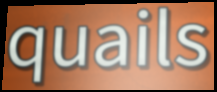
quails